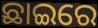
ଛାଇରେ